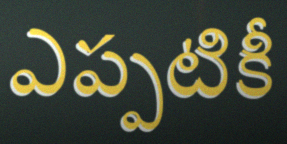
ఎప్పటికీ